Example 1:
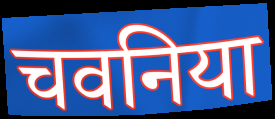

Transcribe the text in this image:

चवनिया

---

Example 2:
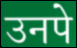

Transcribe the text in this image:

उनपे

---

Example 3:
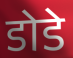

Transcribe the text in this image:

डोडे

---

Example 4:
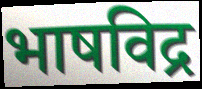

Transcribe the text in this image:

भाषविद्र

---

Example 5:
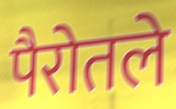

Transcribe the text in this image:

पैरोतले